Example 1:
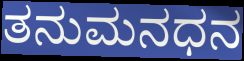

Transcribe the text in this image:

ತನುಮನಧನ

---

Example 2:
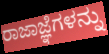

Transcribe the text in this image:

ರಾಜಾಜ್ಞೆಗಳನ್ನು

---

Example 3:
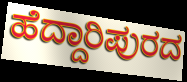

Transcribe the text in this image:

ಹೆದ್ದಾರಿಪುರದ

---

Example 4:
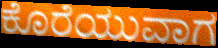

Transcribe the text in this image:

ಕೊರೆಯುವಾಗ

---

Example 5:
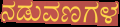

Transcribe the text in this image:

ನಡುವಣಗಳ